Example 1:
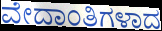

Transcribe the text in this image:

ವೇದಾಂತಿಗಳಾದ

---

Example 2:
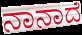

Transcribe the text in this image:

ನಾನಾದೆ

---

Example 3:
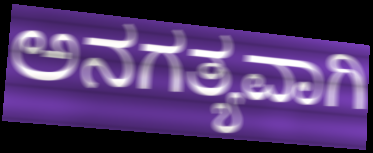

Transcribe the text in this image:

ಅನಗತ್ಯವಾಗಿ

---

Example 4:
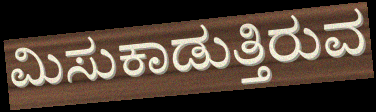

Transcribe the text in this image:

ಮಿಸುಕಾಡುತ್ತಿರುವ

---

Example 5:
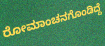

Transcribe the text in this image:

ರೋಮಾಂಚನಗೊಂಡಿದ್ದೆ